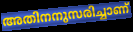
അതിനനുസരിച്ചാണ്